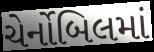
ચેર્નોબિલમાં